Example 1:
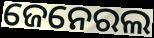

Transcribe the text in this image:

ଜେନେରଲ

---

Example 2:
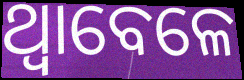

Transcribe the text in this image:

ଥ୍ବାବେଳେ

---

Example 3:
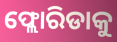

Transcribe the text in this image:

ଫ୍ଲୋରିଡାକୁ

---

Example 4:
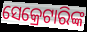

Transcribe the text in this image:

ସେକ୍ରେଟାରିଙ୍କ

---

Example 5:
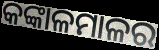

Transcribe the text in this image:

କଙ୍କାଳମାଳର